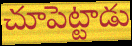
చూపెట్టాడు